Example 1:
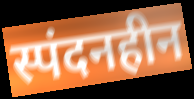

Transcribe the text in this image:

स्पंदनहीन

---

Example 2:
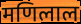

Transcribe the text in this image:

मणिलाल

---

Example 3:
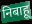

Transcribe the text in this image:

निबाहू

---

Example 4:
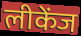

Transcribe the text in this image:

लीकेंज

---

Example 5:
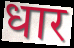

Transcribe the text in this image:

धार